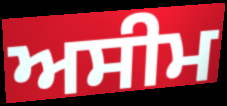
ਅਸੀਮ